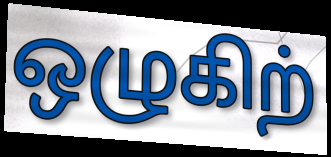
ஒழுகிற்